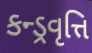
કન્ડ્રવૃત્તિ